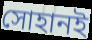
সোহানই